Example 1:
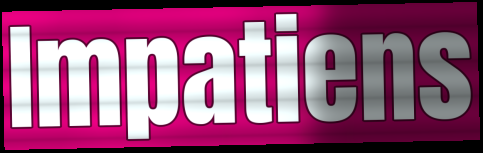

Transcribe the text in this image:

Impatiens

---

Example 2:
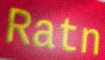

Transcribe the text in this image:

Ratn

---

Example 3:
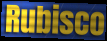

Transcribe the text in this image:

Rubisco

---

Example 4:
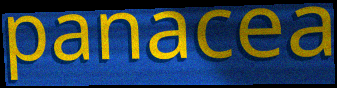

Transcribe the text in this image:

panacea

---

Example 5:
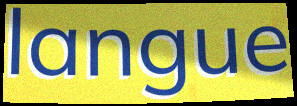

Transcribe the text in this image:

langue